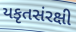
યકૃતસંરક્ષી